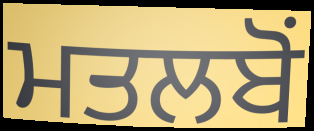
ਮਤਲਬੋਂ